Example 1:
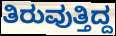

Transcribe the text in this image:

ತಿರುವುತ್ತಿದ್ದ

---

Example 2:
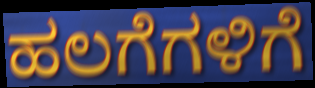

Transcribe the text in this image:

ಹಲಗೆಗಳಿಗೆ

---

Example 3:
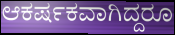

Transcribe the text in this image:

ಆಕರ್ಷಕವಾಗಿದ್ದರೂ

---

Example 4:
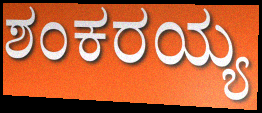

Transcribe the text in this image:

ಶಂಕರಯ್ಯ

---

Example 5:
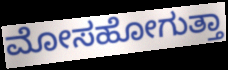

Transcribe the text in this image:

ಮೋಸಹೋಗುತ್ತಾ